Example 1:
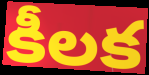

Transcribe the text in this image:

కీలక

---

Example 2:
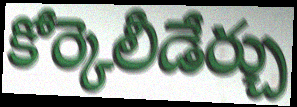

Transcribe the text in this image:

కోర్కెలీడేర్చు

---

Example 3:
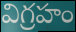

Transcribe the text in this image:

విగ్రహం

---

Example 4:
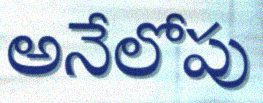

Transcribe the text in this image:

అనేలోపు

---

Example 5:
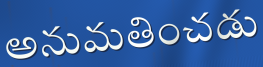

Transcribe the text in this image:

అనుమతించడు